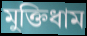
মুক্তিধাম